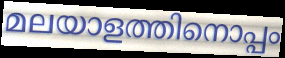
മലയാളത്തിനൊപ്പം